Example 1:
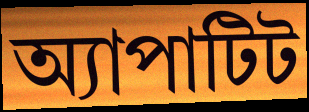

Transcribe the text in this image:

অ্যাপাটিট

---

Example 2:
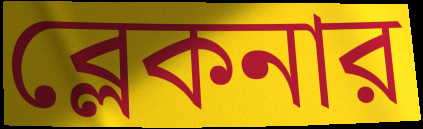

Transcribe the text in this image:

ব্লেকনার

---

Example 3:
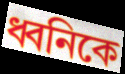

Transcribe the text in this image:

ধ্বনিকে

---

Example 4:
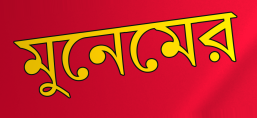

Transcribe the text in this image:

মুনেমের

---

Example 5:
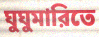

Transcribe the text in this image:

ঘুঘুমারিতে